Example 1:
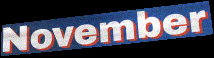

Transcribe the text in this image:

November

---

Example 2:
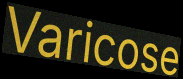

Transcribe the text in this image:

Varicose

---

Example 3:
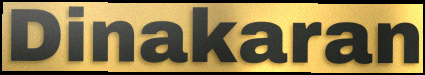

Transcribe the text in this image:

Dinakaran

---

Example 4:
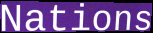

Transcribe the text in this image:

Nations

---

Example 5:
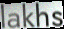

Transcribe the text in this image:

lakhs